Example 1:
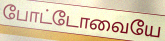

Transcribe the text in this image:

போட்டோவையே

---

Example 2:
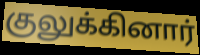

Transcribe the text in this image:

குலுக்கினார்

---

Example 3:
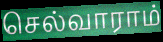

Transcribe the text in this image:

செல்வாராம்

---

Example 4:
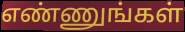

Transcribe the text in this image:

எண்ணுங்கள்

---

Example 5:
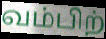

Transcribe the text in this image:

வம்பிற்